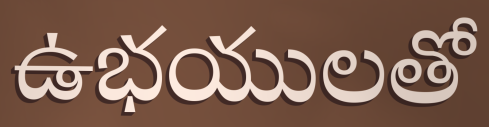
ఉభయులతో